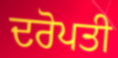
ਦਰੋਪਤੀ